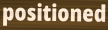
positioned